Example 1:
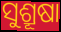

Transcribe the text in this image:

ସୁଶ୍ରୂଷା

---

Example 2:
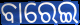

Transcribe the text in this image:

ବାରେଇ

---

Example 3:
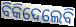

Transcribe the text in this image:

ବିକିଦେଲେବି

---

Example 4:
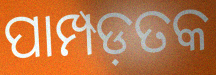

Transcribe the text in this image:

ପାମ୍ପଡ଼ତକ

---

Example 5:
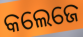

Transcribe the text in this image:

କଲେଜେ